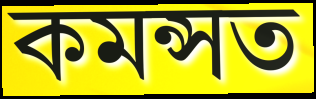
কমন্সত